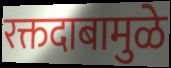
रक्तदाबामुळे